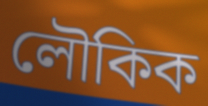
লৌকিক